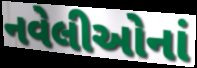
નવેલીઓનાં